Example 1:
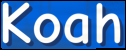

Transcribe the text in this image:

Koah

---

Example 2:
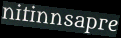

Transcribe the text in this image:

nitinnsapre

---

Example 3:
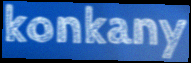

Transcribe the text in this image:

konkany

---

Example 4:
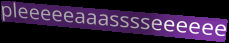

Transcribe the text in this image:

pleeeeeaaasssseeeeee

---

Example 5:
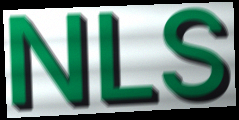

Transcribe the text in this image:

NLS